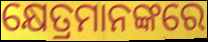
କ୍ଷେତ୍ରମାନଙ୍କରେ